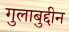
गुलाबुद्दीन